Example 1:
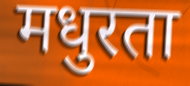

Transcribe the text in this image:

मधुरता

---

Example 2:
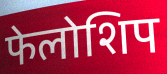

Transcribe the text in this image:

फेलोशिप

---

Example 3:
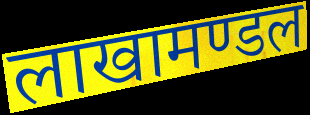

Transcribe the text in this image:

लाखामण्डल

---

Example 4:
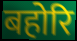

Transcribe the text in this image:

बहोरि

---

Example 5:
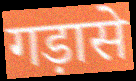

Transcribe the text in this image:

गड़ासे